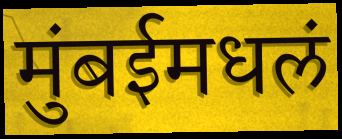
मुंबईमधलं